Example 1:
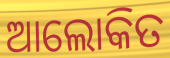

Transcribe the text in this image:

ଆଲୋକିତ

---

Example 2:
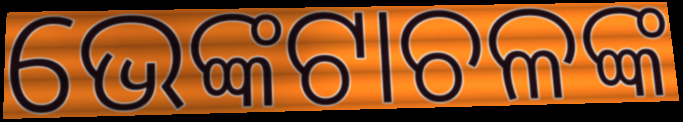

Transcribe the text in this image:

ଭେଙ୍କଟାଚଳଙ୍କ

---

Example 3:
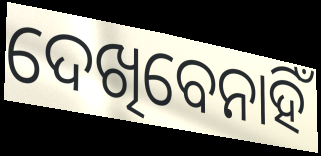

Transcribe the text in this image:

ଦେଖିବେନାହିଁ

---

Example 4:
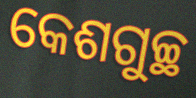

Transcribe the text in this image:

କେଶଗୁଚ୍ଛ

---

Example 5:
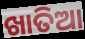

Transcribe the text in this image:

ଖାତିଆ